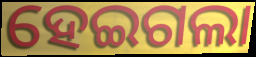
ହେଇଗଲା